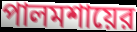
পালমশায়ের